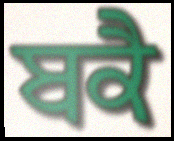
ਬਕੈ